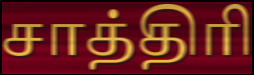
சாத்திரி